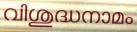
വിശുദ്ധനാമം